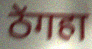
ठेंगहा